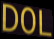
DOL